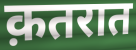
क़तरात